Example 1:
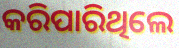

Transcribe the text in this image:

କରିପାରିଥିଲେ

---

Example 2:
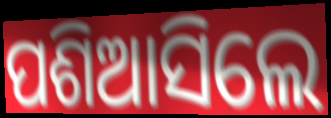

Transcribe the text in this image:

ପଶିଆସିଲେ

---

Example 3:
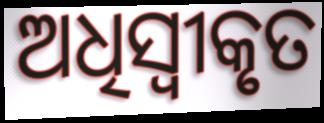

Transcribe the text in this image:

ଅଧିସ୍ୱୀକୃତ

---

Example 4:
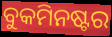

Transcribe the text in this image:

ବୁକମିନଷ୍ଟର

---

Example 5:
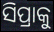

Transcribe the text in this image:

ସିପ୍ରାକୁ